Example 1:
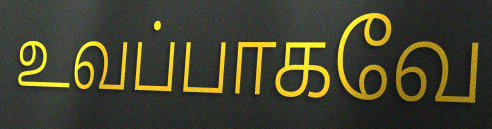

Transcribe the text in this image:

உவப்பாகவே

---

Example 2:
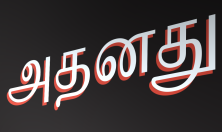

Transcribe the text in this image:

அதனது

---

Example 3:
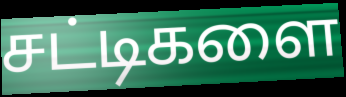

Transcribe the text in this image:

சட்டிகளை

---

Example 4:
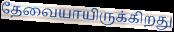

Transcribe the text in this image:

தேவையாயிருக்கிறது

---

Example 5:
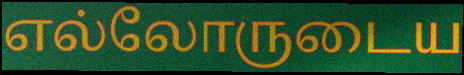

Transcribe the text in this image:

எல்லோருடைய